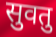
सुवतु